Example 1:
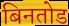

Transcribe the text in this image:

बिनतोड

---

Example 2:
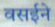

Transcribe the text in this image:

वसईने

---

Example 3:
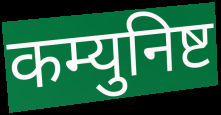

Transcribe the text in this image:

कम्युनिष्ट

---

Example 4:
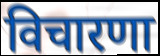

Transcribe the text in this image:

विचारणा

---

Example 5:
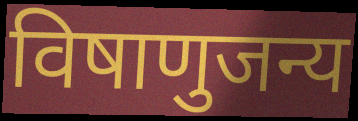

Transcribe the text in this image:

विषाणुजन्य